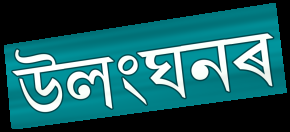
উলংঘনৰ